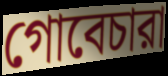
গোবেচারা